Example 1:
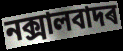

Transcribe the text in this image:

নক্সালবাদৰ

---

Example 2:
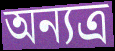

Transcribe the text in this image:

অন্যত্ৰ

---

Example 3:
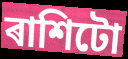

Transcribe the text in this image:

ৰাশিটো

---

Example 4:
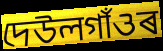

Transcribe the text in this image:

দেউলগাঁওৰ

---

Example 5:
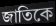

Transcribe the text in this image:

জাতিকে